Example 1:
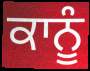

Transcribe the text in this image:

ਕਾਨੂੰ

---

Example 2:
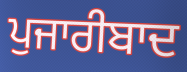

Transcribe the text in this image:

ਪੁਜਾਰੀਬਾਦ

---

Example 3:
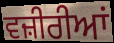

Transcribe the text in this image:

ਵਜ਼ੀਰੀਆਂ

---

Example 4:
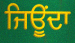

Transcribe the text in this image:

ਜਿਊੂਂਦਾ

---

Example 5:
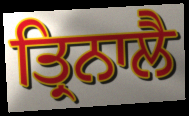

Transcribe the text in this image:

ਤ੍ਰਿਨਾਲੈ